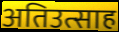
अतिउत्साह